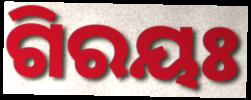
ଗିରୟଃ